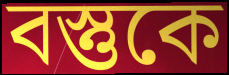
বস্তুকে